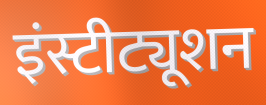
इंस्टीट्यूशन